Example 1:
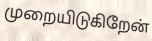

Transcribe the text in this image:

முறையிடுகிறேன்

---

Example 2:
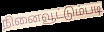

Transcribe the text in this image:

நினைவூட்டும்படி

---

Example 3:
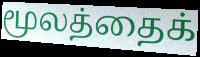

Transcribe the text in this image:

மூலத்தைக்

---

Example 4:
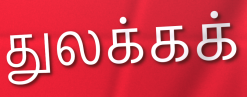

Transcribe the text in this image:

துலக்கக்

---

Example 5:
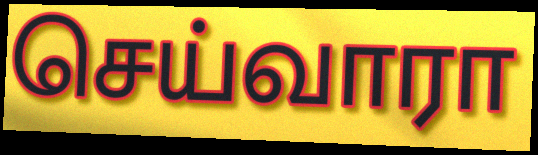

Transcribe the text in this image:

செய்வாரா